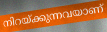
നിറയ്ക്കുന്നവയാണ്